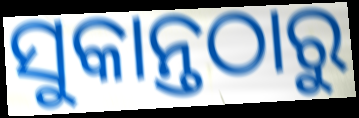
ସୁକାନ୍ତଠାରୁ